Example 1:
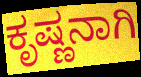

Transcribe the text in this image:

ಕೃಷ್ಣನಾಗಿ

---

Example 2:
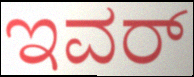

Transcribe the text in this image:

ಇವರ್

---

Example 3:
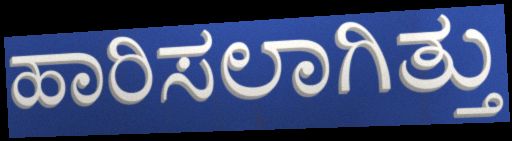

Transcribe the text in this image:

ಹಾರಿಸಲಾಗಿತ್ತು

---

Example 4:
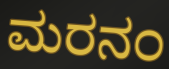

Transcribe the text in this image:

ಮರನಂ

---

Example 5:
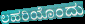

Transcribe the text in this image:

ಲಹರಿಯೊಂದು